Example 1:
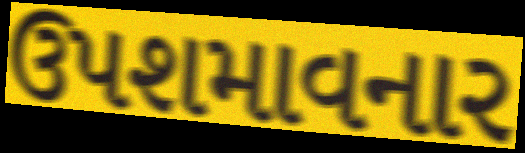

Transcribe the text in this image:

ઉપશમાવનાર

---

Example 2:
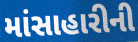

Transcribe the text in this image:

માંસાહારીની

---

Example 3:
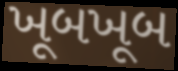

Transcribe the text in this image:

ખૂબખૂબ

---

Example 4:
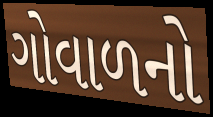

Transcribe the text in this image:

ગોવાળનો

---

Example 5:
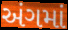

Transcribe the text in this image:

અંગમાં